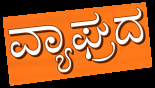
ವ್ಯಾಘ್ರದ